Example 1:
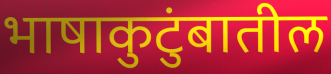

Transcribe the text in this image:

भाषाकुटुंबातील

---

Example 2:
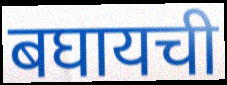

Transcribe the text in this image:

बघायची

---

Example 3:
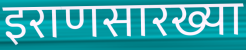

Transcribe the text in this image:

इराणसारख्या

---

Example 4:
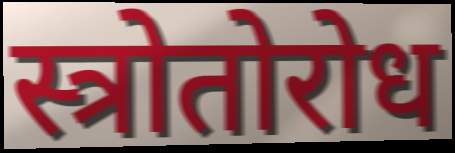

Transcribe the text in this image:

स्त्रोतोरोध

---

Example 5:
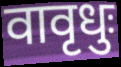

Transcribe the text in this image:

वावृधुः